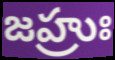
జహ్రుః